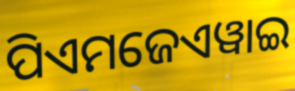
ପିଏମଜେଏୱାଇ